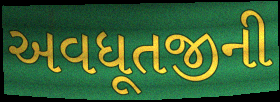
અવધૂતજીની